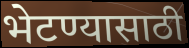
भेटण्यासाठी